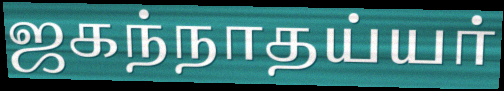
ஜகந்நாதய்யர்